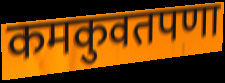
कमकुवतपणा